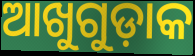
ଆଖୁଗୁଡ଼ାକ